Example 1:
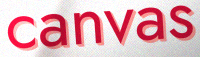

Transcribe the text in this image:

canvas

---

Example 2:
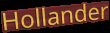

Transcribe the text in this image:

Hollander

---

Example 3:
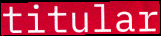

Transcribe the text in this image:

titular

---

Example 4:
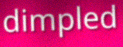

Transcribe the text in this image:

dimpled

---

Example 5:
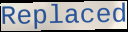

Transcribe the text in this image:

Replaced